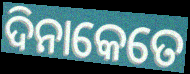
ଦିନାକେତେ